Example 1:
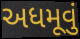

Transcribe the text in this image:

અધમૂવું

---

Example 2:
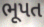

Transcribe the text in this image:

ભૂપત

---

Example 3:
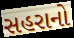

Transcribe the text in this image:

સહરાનો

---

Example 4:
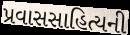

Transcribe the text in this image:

પ્રવાસસાહિત્યની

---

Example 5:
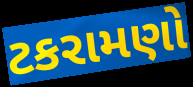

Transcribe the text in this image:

ટકરામણો